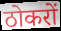
ठोकरों